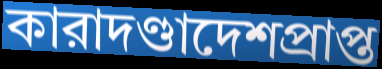
কারাদণ্ডাদেশপ্রাপ্ত